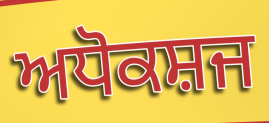
ਅਧੋਕਸ਼ਜ